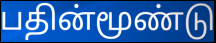
பதின்மூண்டு